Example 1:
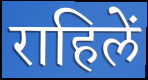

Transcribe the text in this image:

राहिलें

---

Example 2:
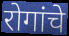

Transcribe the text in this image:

रोगांचे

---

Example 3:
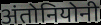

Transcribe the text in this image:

अंतोनियोनी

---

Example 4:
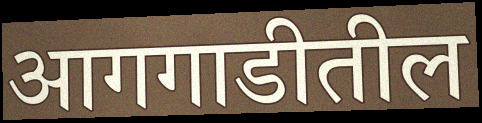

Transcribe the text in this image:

आगगाडीतील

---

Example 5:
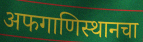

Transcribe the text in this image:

अफगाणिस्थानचा